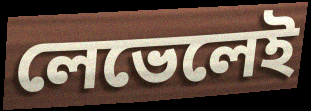
লেভেলেই